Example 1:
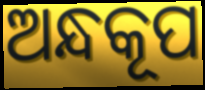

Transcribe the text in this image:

ଅନ୍ଧକୂପ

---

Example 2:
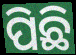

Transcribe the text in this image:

ପିଛି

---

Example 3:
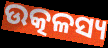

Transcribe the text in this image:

ଉତ୍କଳସ୍ୟ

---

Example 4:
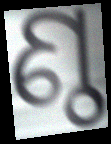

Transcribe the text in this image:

ଣ୍ଠ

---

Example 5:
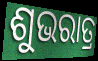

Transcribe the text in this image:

ଶୁଭରାତ୍ର